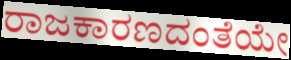
ರಾಜಕಾರಣದಂತೆಯೇ